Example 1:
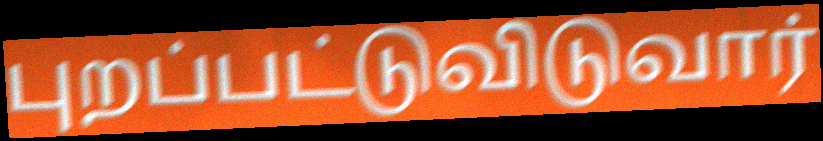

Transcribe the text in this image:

புறப்பட்டுவிடுவார்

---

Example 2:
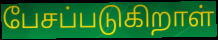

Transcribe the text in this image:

பேசப்படுகிறாள்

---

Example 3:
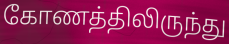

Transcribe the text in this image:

கோணத்திலிருந்து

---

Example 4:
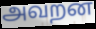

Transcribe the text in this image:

அவறன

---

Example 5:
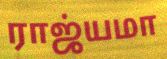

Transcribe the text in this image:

ராஜ்யமா